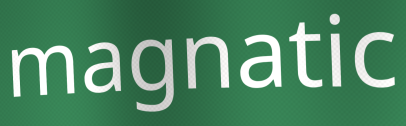
magnatic